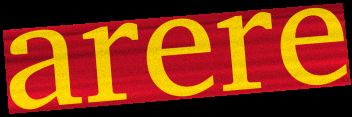
arere